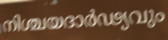
നിശ്ചയദാർഢ്യവും